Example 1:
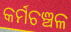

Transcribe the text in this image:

କର୍ମଚଞ୍ଚଳ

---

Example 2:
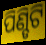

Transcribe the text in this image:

ପିଣ୍ଡିଟି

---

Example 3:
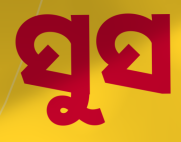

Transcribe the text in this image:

ସୁସ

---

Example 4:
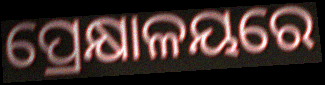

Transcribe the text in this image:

ପ୍ରେକ୍ଷାଳୟରେ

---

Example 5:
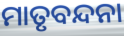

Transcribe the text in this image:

ମାତୃବନ୍ଦନା